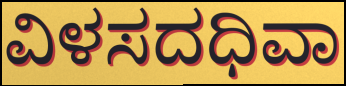
ವಿಳಸದಧಿವಾ